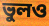
ভুলও